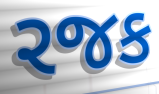
રજક